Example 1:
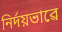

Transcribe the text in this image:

নিৰ্দয়ভাৱে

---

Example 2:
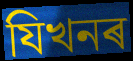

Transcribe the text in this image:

যিখনৰ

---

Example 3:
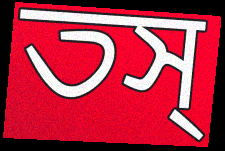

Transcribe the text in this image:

তস্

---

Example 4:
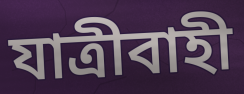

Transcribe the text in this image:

যাত্ৰীবাহী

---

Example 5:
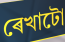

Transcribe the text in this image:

ৰেখাটো